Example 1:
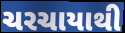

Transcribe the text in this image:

ચરચાયાથી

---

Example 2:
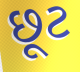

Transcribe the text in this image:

છૂટ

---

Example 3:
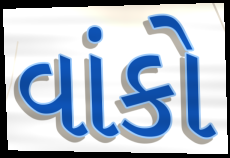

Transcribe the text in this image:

વાંકો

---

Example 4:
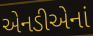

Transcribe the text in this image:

એનડીએનાં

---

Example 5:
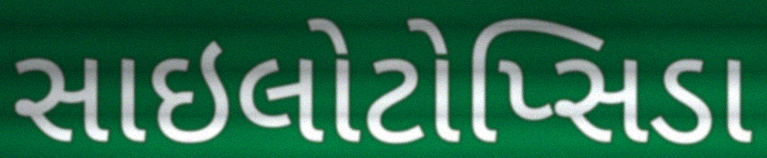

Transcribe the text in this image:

સાઇલોટોપ્સિડા